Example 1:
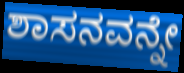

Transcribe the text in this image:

ಶಾಸನವನ್ನೇ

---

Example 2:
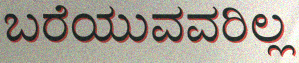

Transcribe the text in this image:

ಬರೆಯುವವರಿಲ್ಲ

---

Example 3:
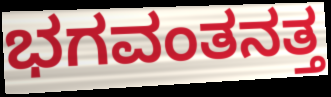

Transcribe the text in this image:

ಭಗವಂತನತ್ತ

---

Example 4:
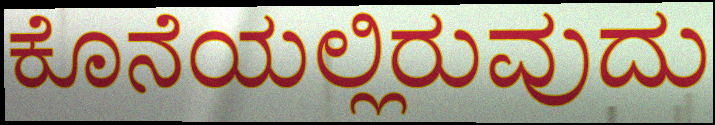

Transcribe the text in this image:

ಕೊನೆಯಲ್ಲಿರುವುದು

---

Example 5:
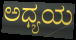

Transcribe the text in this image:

ಅಧ್ಯಯ